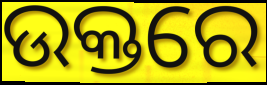
ଉକ୍ତରେ